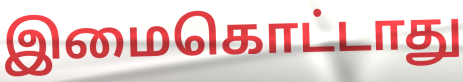
இமைகொட்டாது